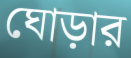
ঘোড়ার